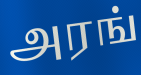
அரங்